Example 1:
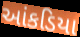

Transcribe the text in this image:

આંકડિયા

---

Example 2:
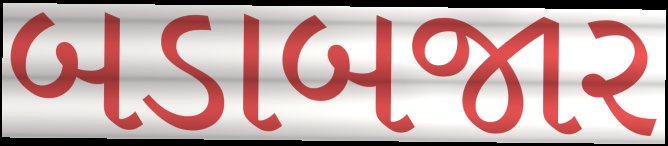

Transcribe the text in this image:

બડાબજાર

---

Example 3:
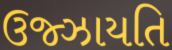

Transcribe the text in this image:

ઉજ્ઝાયતિ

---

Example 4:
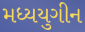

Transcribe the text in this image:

મધ્યયુગીન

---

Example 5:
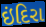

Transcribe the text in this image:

ઇંદિરા